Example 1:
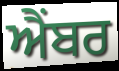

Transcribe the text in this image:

ਐਂਬਰ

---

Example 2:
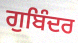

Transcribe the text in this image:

ਗੁਬਿੰਦਰ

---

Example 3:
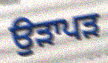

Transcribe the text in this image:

ਉੜਾਪੜ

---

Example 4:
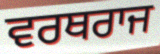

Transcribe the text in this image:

ਵਰਥਰਾਜ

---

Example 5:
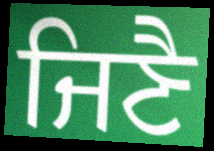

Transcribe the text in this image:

ਜਿਣੈ